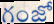
గంజో